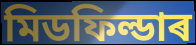
মিডফিল্ডাৰ